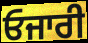
ਓਜਾਰੀ